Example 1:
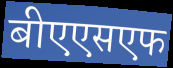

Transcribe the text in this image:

बीएएसएफ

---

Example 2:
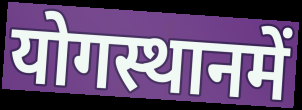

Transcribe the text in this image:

योगस्थानमें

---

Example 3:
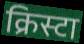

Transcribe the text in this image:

क्रिस्टा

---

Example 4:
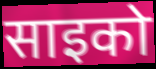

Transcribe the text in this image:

साइको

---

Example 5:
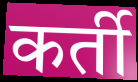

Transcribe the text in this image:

कर्ती